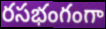
రసభంగంగా